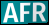
AFR